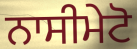
ਨਾਸੀਮੇਟੋ